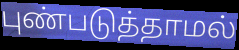
புண்படுத்தாமல்